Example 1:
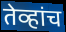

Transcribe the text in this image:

तेव्हांच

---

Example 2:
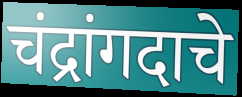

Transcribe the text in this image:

चंद्रांगदाचे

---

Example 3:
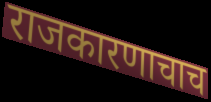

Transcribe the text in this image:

राजकारणाचाच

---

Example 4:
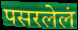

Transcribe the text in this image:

पसरलेलं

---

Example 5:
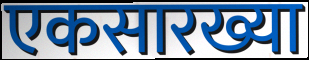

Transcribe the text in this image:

एकसारख्या